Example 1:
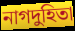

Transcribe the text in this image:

নাগদুহিতা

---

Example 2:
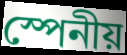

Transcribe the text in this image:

স্পেনীয়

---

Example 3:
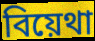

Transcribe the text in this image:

বিয়েথা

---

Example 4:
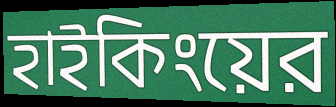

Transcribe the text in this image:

হাইকিংয়ের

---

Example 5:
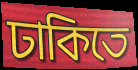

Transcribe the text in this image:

ঢাকিতে